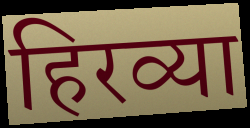
हिरव्या